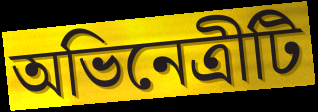
অভিনেত্রীটি